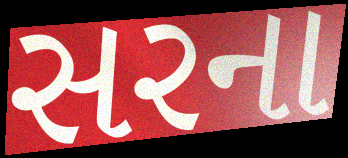
સરના